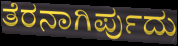
ತೆರನಾಗಿರ್ಪುದು